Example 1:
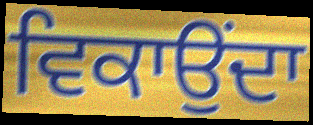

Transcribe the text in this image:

ਵਿਕਾਉੰਦਾ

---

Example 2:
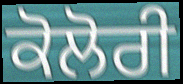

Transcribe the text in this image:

ਕੋਲੋਰੀ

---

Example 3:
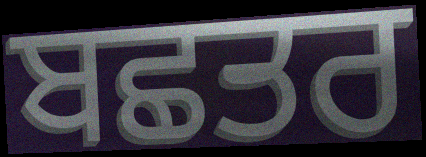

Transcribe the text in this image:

ਬਛਤਰ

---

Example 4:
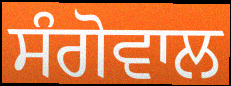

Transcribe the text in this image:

ਸੰਗੋਵਾਲ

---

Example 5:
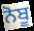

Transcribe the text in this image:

ਨੋਬੂ